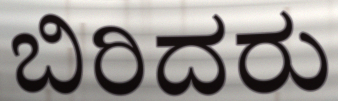
ಬಿರಿದರು